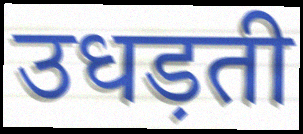
उधड़ती